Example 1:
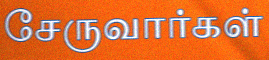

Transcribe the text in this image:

சேருவார்கள்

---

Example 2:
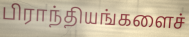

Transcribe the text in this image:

பிராந்தியங்களைச்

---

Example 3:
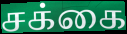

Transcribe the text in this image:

சக்கை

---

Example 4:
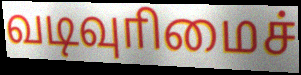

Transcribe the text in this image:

வடிவுரிமைச்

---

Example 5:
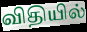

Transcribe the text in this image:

விதியில்